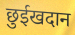
छुईखदान